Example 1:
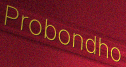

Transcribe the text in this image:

Probondho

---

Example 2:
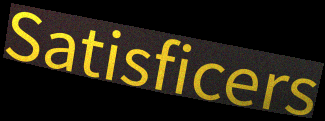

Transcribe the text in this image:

Satisficers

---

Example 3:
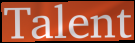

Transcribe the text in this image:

Talent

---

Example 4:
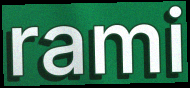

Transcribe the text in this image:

rami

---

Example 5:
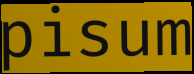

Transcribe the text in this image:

pisum